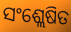
ସଂଶ୍ଲେଷିତ